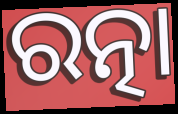
ରତ୍ନା